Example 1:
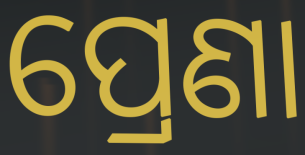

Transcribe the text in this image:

ପ୍ରେଣା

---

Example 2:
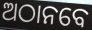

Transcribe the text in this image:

ଅଠାନବେ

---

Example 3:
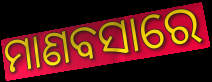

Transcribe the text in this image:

ମାଣବସାରେ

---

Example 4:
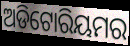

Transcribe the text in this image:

ଅଡିଟୋରିୟମର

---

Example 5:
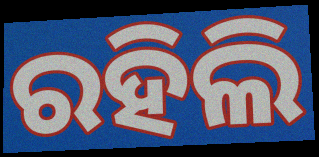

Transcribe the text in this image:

ରହିଲି